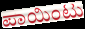
ಪಾಯಿಂಟು